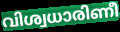
വിശ്വധാരിണീ